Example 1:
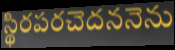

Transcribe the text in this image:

స్థిరపరచెదననెను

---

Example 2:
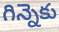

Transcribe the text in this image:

గిన్నెకు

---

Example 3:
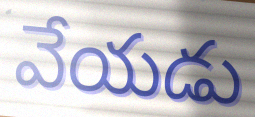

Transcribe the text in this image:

వేయడు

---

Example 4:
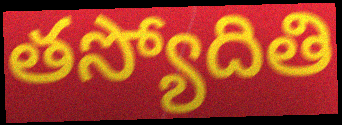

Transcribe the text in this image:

తస్యోదితి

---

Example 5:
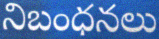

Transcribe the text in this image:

నిబంధనలు